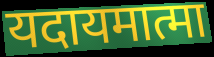
यदायमात्मा